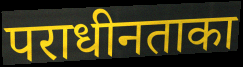
पराधीनताका